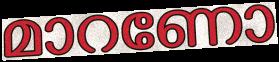
മാറണോ